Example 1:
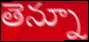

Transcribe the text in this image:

తెన్నూ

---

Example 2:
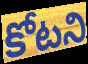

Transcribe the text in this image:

కోటని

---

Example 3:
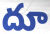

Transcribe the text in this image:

దూ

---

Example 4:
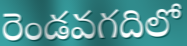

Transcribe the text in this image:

రెండవగదిలో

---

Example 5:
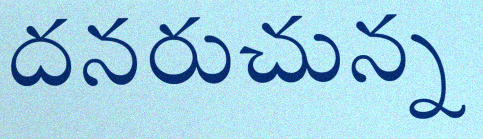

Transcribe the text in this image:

దనరుచున్న